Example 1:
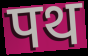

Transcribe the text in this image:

पथ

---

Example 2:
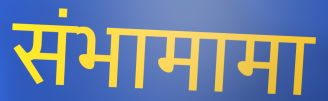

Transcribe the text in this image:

संभामामा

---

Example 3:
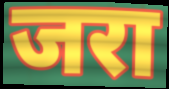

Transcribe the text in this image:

जरा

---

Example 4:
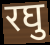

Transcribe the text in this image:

रघु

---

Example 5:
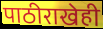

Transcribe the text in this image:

पाठीराखेही